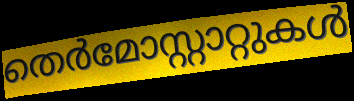
തെർമോസ്റ്റാറ്റുകൾ